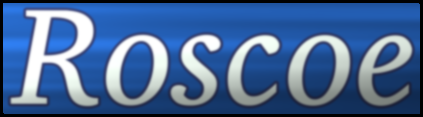
Roscoe